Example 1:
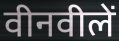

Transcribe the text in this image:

वीनवीलें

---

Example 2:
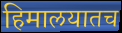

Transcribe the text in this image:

हिमालयातच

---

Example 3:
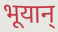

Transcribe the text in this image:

भूयान्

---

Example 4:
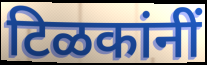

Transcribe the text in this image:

टिळकांनीं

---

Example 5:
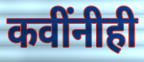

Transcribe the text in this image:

कवींनीही